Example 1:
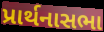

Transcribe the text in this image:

પ્રાર્થનાસભા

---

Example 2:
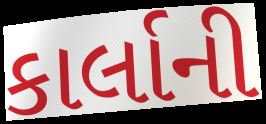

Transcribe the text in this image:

કાર્લાની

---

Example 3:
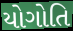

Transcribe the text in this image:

યોગોતિ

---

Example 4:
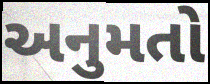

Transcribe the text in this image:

અનુમતો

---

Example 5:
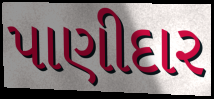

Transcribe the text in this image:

પાણીદાર